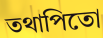
তথাপিতো